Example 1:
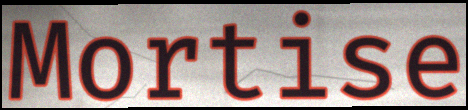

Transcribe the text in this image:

Mortise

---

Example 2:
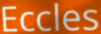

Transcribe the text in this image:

Eccles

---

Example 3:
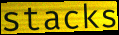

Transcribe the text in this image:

stacks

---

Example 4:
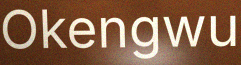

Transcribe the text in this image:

Okengwu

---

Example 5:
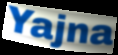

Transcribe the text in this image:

Yajna